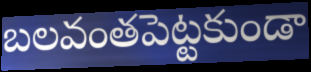
బలవంతపెట్టకుండా